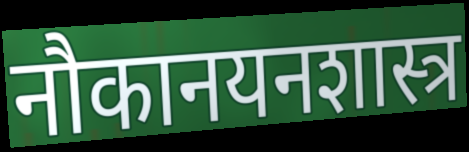
नौकानयनशास्त्र